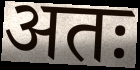
अतः